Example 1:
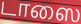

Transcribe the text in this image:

டாஸை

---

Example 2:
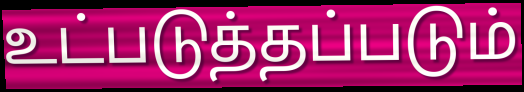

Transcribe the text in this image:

உட்படுத்தப்படும்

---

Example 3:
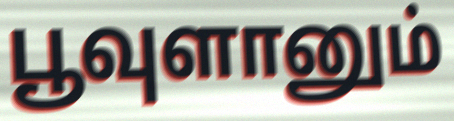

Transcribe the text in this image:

பூவுளானும்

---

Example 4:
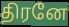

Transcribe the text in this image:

திரனே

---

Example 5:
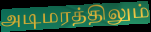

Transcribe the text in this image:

அடிமரத்திலும்